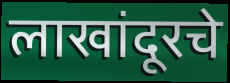
लाखांदूरचे